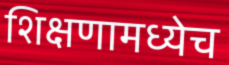
शिक्षणामध्येच